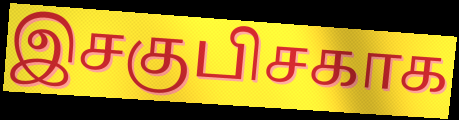
இசகுபிசகாக